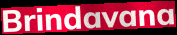
Brindavana